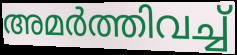
അമർത്തിവച്ച്